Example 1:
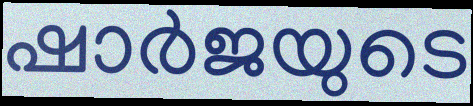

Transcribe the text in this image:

ഷാർജയുടെ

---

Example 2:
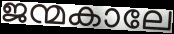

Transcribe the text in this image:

ജന്മകാലേ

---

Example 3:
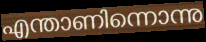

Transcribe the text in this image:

എന്താണിന്നൊന്നു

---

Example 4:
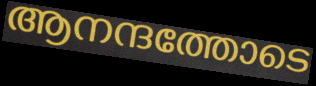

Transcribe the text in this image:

ആനന്ദത്തോടെ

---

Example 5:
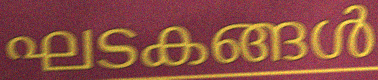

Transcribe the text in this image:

ഘടകങ്ങൾ